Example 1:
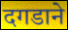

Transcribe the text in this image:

दगडाने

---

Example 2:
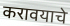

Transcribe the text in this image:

करावयाचे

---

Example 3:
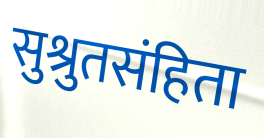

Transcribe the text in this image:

सुश्रुतसंहिता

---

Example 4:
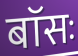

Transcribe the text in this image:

बॉसः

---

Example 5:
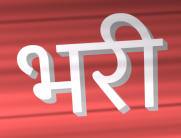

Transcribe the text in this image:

भरी